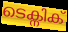
ടെക്നിക്